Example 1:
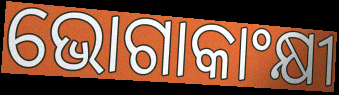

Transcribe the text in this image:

ଭୋଗାକାଂକ୍ଷୀ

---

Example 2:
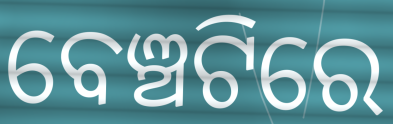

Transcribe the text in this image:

ବେଞ୍ଚଟିରେ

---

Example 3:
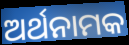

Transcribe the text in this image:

ଅର୍ଥନାମକ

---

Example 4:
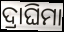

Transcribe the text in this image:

ଦ୍ରାଘିମା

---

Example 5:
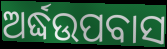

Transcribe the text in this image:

ଅର୍ଦ୍ଧଉପବାସ